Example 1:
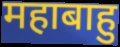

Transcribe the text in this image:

महाबाहु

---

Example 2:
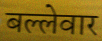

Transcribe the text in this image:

बल्लेवार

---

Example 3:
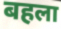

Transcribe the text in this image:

बहला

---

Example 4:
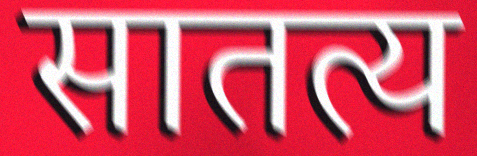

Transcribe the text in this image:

सातत्य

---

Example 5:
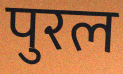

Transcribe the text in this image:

पुरल